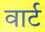
वार्ट